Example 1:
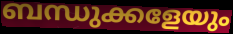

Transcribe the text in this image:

ബന്ധുക്കളേയും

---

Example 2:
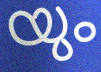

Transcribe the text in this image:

യും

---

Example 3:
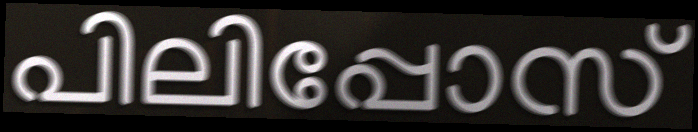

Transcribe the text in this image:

പിലിപ്പോസ്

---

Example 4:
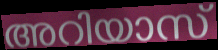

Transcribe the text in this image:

അറിയാസ്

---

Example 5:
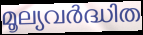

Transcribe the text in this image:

മൂല്യവർദ്ധിത